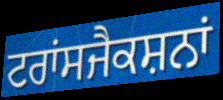
ਟਰਾਂਸਜੈਕਸ਼ਨਾਂ